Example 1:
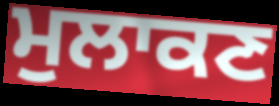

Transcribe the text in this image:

ਮੁਲਾਕਣ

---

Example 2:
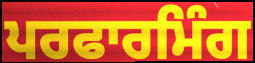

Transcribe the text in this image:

ਪਰਫਾਰਮਿੰਗ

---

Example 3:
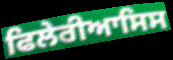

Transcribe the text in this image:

ਫਿਲੇਰੀਆਸਿਸ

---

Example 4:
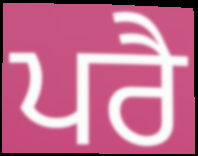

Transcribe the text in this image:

ਪਰੈ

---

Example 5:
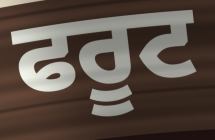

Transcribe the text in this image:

ਫਰੂਟ